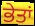
ਭੇਤਾਂ